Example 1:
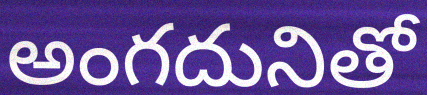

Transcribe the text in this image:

అంగదునితో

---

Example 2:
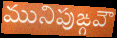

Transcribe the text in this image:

మునిపుఙ్గవౌ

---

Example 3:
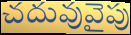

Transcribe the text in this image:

చదువువైపు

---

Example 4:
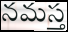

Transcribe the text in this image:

నమస్త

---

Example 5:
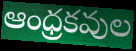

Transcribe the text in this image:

ఆంధ్రకవుల